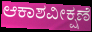
ಆಕಾಶವೀಕ್ಷಣೆ